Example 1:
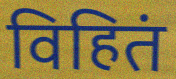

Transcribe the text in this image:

विहितं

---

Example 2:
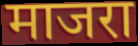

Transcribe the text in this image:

माजरा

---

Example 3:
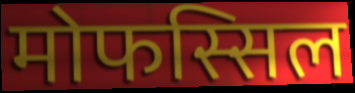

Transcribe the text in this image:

मोफस्सिल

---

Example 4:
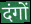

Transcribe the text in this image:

दंगों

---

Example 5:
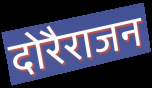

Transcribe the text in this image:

दोरैराजन